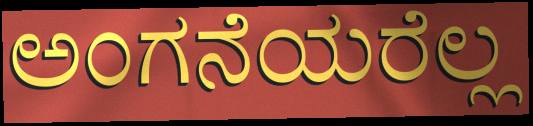
ಅಂಗನೆಯರೆಲ್ಲ